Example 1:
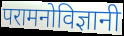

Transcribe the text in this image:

परामनोविज्ञानी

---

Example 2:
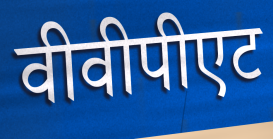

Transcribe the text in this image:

वीवीपीएट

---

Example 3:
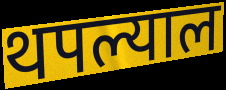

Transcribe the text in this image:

थपल्याल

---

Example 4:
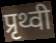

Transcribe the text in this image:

प्रृथ्वी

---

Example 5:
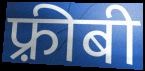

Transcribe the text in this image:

फ़्रीबी